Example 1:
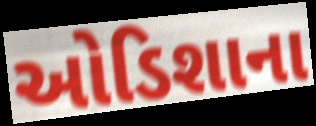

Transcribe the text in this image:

ઓડિશાના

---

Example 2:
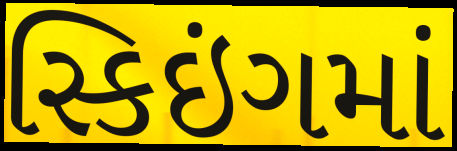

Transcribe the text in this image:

સ્કિઇંગમાં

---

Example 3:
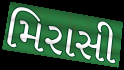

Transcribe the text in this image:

મિરાસી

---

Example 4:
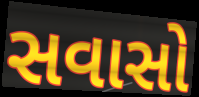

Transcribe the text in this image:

સવાસો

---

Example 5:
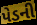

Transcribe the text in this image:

પેડની